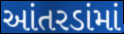
આંતરડાંમાં